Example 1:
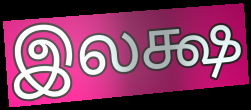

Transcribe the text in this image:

இலக்ஷ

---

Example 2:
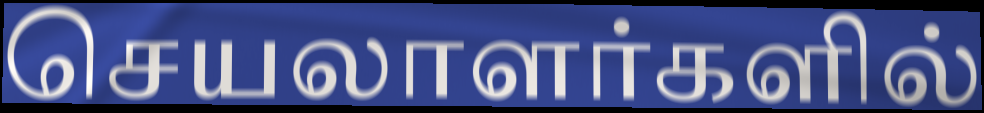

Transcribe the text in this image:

செயலாளர்களில்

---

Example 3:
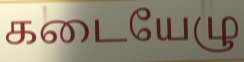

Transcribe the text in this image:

கடையேழு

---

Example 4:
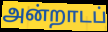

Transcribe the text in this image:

அன்றாடப்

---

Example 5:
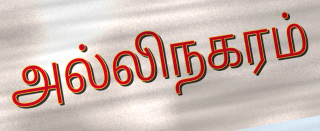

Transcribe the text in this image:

அல்லிநகரம்